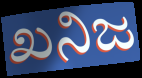
ಖನಿಜ